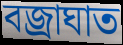
বজ্রাঘাত